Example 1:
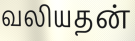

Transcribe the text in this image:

வலியதன்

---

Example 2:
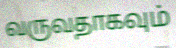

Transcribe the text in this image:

வருவதாகவும்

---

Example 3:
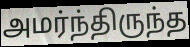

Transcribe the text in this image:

அமர்ந்திருந்த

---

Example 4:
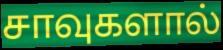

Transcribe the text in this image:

சாவுகளால்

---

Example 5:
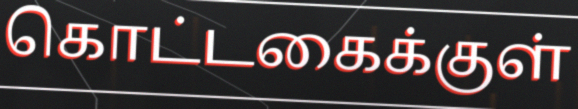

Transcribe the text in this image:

கொட்டகைக்குள்